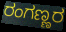
ರಂಗಣ್ಣರ